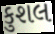
કુશલ